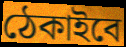
ঠেকাইবে